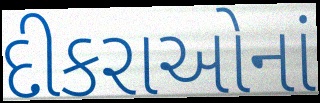
દીકરાઓનાં